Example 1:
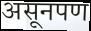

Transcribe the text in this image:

असूनपण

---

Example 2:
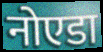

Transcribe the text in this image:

नोएडा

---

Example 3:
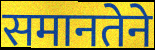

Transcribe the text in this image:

समानतेने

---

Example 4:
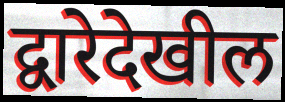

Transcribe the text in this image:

द्वारेदेखील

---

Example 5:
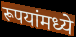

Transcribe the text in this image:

रूपयांमध्ये